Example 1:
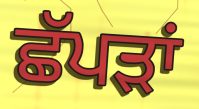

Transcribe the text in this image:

ਛੱਪੜਾਂ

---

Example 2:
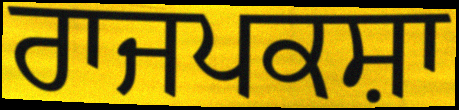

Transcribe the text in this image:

ਰਾਜਪਕਸ਼ਾ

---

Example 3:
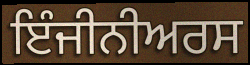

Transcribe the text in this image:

ਇੰਜੀਨੀਅਰਸ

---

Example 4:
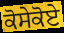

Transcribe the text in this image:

ਕੋਸੇਕੋਏ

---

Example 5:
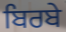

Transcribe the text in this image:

ਬਿਰਬੇ